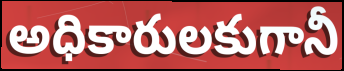
అధికారులకుగానీ